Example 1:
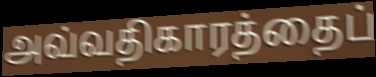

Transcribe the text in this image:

அவ்வதிகாரத்தைப்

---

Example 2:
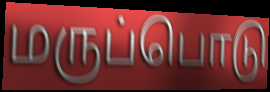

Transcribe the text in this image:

மருப்பொடு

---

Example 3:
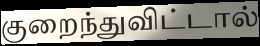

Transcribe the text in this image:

குறைந்துவிட்டால்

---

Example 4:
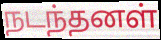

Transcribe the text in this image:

நடந்தனள்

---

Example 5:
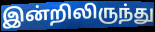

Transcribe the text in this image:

இன்றிலிருந்து